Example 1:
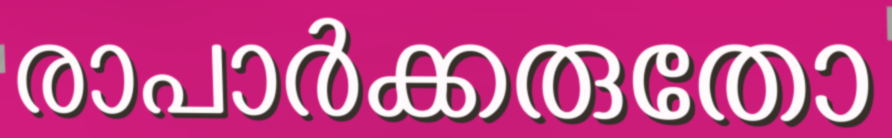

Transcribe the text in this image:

രാപാർക്കരുതോ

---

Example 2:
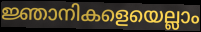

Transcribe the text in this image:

ജ്ഞാനികളെയെല്ലാം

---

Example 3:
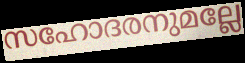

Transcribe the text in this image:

സഹോദരനുമല്ലേ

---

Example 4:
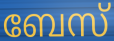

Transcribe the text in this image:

ബേസ്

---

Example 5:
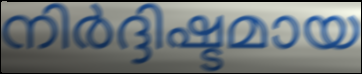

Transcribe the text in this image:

നിർദ്ദിഷ്ടമായ